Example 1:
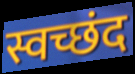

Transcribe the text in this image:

स्वच्छंद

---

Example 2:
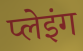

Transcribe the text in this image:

प्लेइंग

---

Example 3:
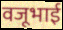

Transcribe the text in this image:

वजूभाई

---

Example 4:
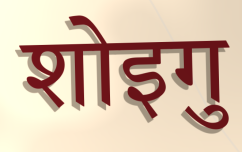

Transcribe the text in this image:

शोइगु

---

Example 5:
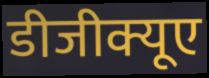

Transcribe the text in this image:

डीजीक्यूए